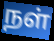
நள்